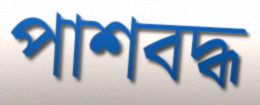
পাশবদ্ধ